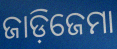
ଜାଡ଼ିଜେମା